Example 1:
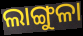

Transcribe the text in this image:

ଲାଙ୍ଗୁଳା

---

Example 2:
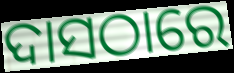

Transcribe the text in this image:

ଦାସଠାରେ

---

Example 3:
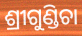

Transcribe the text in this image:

ଶ୍ରୀଗୁଣ୍ଡିଚା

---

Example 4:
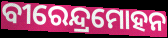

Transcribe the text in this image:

ବୀରେନ୍ଦ୍ରମୋହନ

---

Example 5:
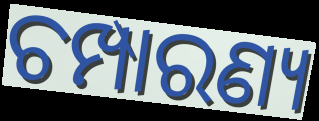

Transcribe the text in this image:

ଚମ୍ପାରଣ୍ୟ